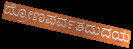
ದ್ರೋಣಪರ್ವತದುದಯ